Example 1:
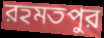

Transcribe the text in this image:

রহমতপুর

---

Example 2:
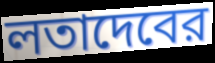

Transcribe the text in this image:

লতাদেবের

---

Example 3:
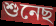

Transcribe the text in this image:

শুনেছ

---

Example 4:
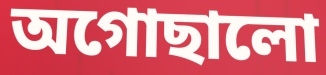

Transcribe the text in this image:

অগোছালো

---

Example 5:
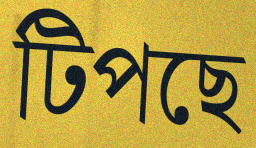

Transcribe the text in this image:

টিপছে